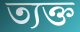
ত্যক্ত